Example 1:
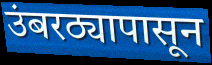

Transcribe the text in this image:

उंबरठ्यापासून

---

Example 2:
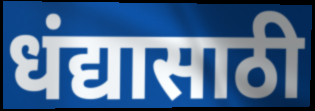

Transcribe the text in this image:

धंद्यासाठी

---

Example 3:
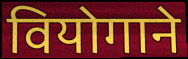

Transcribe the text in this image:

वियोगाने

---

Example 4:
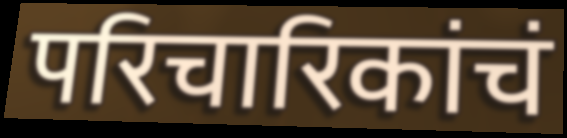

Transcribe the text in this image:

परिचारिकांचं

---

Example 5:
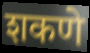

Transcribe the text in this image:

शकणे